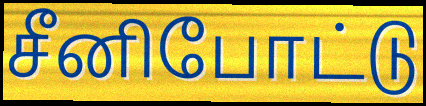
சீனிபோட்டு